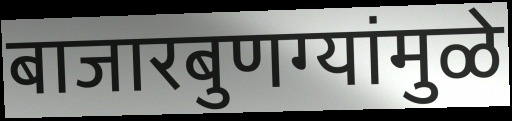
बाजारबुणग्यांमुळे